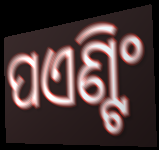
ପଏଣ୍ଟିଂ